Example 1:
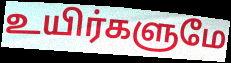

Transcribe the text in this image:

உயிர்களுமே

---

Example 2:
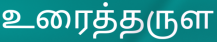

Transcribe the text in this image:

உரைத்தருள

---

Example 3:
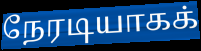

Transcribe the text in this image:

நேரடியாகக்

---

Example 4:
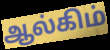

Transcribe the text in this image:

ஆல்கிம்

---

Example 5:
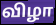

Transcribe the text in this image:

விழா